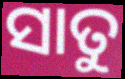
ସାତୁ